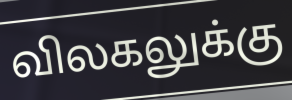
விலகலுக்கு